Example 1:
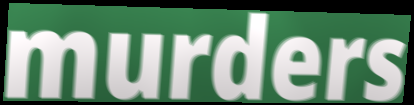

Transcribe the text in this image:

murders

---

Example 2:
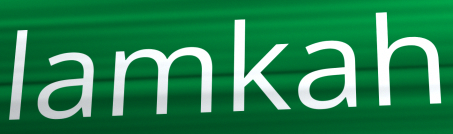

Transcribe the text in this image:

lamkah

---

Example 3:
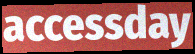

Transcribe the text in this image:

accessday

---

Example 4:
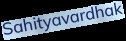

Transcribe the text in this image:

Sahityavardhak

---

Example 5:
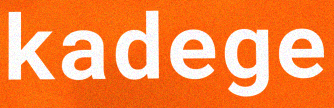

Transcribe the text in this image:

kadege